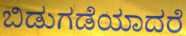
ಬಿಡುಗಡೆಯಾದರೆ